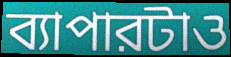
ব্যাপারটাও